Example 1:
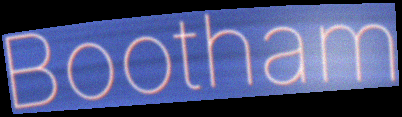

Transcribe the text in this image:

Bootham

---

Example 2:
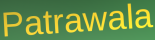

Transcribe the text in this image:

Patrawala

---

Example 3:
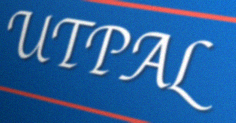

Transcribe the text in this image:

UTPAL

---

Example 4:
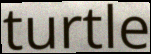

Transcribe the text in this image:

turtle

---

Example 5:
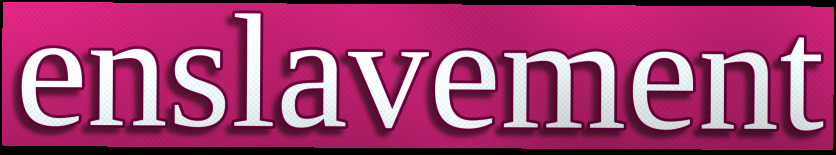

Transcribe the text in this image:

enslavement